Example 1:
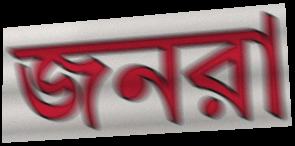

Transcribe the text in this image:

জনরা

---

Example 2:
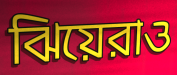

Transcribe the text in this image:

ঝিয়েরাও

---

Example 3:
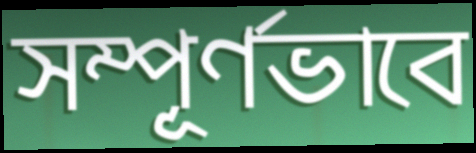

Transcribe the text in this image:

সম্পূর্ণভাবে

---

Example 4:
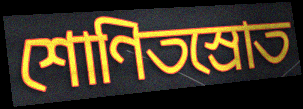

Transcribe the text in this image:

শোণিতস্রোত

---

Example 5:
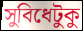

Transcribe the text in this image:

সুবিধেটুকু